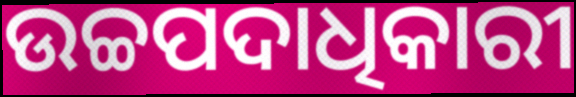
ଉଚ୍ଚପଦାଧିକାରୀ